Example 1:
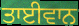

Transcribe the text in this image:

ਤਾਈਵਾਨ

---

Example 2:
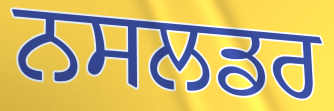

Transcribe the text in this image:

ਨਸਲਡਰ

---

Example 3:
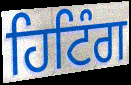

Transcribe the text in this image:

ਹਿਟਿੰਗ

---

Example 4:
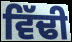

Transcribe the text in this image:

ਵਿੱਢੀ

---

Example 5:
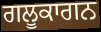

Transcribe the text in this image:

ਗਲੂਕਾਗਨ